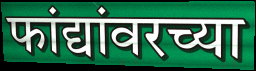
फांद्यांवरच्या